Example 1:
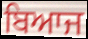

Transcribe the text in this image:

ਬਿਆਜ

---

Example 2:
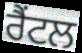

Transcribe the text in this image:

ਰੈਂਟਲ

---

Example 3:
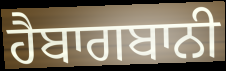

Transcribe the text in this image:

ਹੈਬਾਗਬਾਨੀ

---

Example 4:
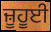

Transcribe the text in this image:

ਜ਼ੂਹੂਈ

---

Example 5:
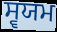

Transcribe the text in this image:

ਸ੍ਵਯਮ